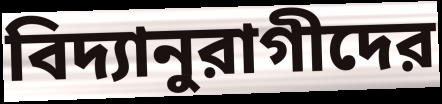
বিদ্যানুরাগীদের